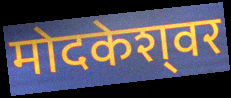
मोदकेश्वर